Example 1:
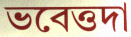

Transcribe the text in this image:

ভবেত্তদা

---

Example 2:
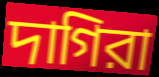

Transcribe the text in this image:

দাগিরা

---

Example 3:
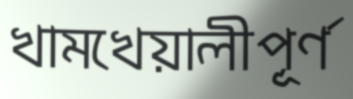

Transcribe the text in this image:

খামখেয়ালীপূর্ণ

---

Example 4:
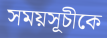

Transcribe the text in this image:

সময়সূচীকে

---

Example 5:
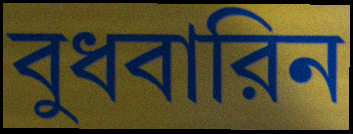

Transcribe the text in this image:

বুধবারিন